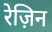
रेज़िन